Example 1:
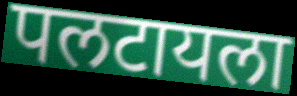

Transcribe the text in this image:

पलटायला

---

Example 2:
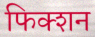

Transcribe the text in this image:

फिक्शन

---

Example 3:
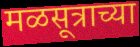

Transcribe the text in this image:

मळसूत्राच्या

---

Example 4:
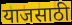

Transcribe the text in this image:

याजसाठी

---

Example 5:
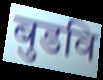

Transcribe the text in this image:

बुडवि